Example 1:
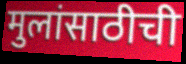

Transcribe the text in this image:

मुलांसाठीची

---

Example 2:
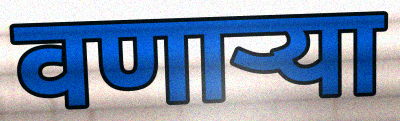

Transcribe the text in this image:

वणाऱ्या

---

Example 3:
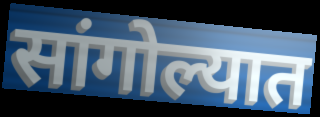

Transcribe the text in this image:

सांगोल्यात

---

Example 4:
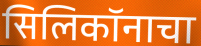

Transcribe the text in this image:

सिलिकॉनाचा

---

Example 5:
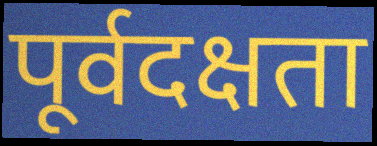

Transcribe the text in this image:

पूर्वदक्षता